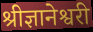
श्रीज्ञानेश्वरी